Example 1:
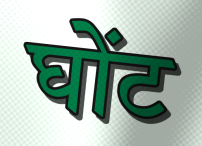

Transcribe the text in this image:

घोंट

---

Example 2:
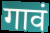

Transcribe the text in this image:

गावं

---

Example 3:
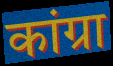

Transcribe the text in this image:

कांग्रा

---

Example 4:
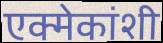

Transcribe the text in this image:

एक्मेकांशी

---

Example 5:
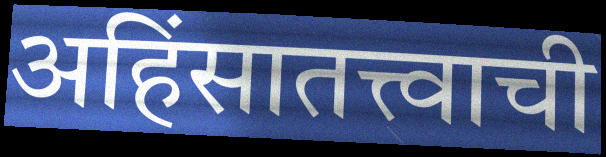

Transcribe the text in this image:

अहिंसातत्त्वाची